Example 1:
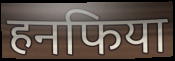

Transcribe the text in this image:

हनफिया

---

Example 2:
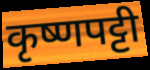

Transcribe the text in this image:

कृष्णपट्टी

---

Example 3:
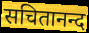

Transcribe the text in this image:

सचितानन्द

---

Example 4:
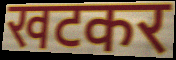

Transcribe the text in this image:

खटकर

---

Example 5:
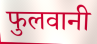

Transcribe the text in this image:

फुलवानी